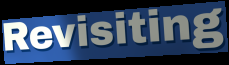
Revisiting